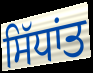
ਸਿੱਧਾਂਤ